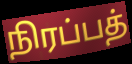
நிரப்பத்